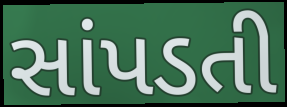
સાંપડતી